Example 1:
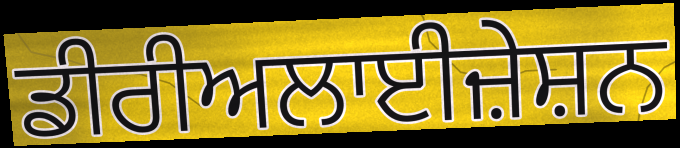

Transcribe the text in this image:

ਡੀਰੀਅਲਾਈਜ਼ੇਸ਼ਨ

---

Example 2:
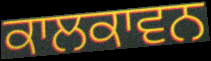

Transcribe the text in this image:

ਕਾਲਕਾਵਨ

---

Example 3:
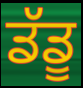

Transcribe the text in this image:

ਡੱਡੂ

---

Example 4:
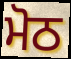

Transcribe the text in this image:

ਮੋਠ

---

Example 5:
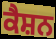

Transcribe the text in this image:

ਕੈਸ਼ਨ